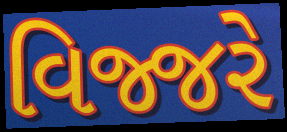
વિજ્જરે